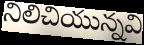
నిలిచియున్నవి